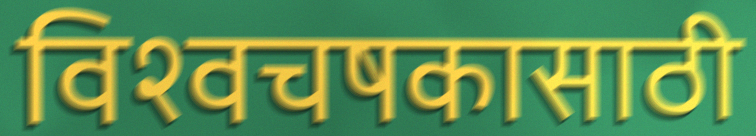
विश्वचषकासाठी